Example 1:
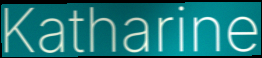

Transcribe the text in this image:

Katharine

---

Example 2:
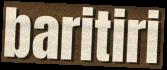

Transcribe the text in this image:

baritiri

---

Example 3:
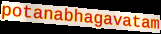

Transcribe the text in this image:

potanabhagavatam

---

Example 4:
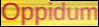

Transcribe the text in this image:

Oppidum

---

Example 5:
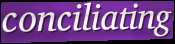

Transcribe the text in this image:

conciliating